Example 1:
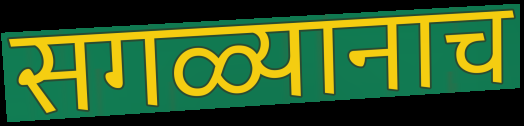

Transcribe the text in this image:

सगळ्यानाच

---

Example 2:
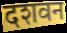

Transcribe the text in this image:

दशवन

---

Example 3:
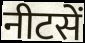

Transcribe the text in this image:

नीटसें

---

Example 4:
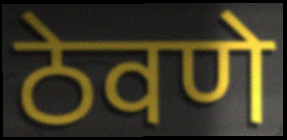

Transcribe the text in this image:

ठेवणे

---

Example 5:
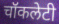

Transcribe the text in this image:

चॉकलेटी